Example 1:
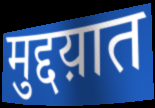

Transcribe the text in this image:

मुद्दय़ात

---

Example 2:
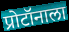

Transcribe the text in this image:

प्रोटॉनाला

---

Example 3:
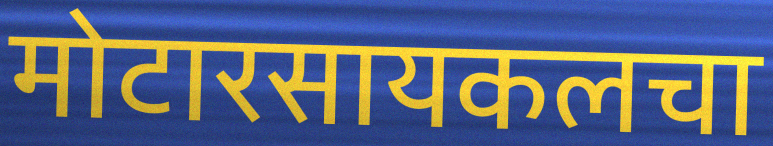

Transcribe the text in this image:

मोटारसायकलचा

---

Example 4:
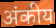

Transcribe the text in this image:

अंकीय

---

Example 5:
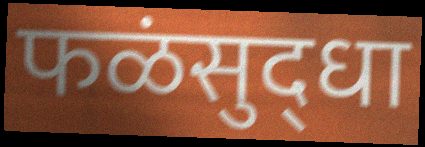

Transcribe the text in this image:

फळंसुद्धा